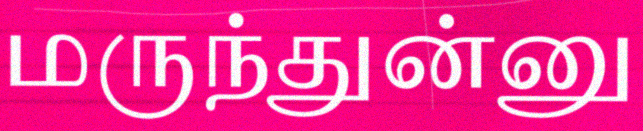
மருந்துன்னு